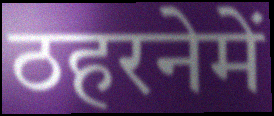
ठहरनेमें